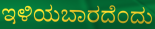
ಇಳಿಯಬಾರದೆಂದು